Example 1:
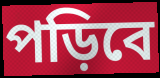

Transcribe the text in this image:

পড়িবে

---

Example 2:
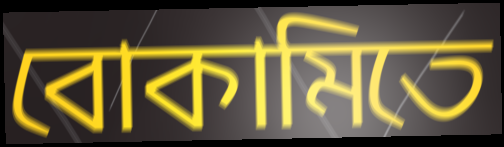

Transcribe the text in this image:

বোকামিতে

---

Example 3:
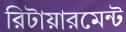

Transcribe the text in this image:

রিটায়ারমেন্ট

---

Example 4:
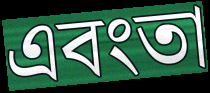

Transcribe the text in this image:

এবংতা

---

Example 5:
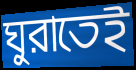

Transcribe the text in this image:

ঘুরাতেই